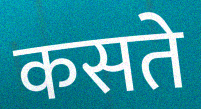
कसते